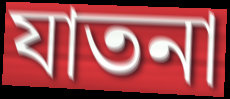
যাতনা